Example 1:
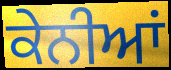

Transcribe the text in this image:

ਕੇਨੀਆਂ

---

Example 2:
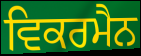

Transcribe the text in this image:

ਵਿਕਰਮੈਨ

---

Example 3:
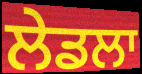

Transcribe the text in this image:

ਲੇਡਲਾ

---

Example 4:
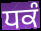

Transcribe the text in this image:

ਧਕੰ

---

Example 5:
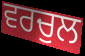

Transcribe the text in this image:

ਵਰਚੁਲ